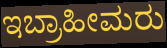
ಇಬ್ರಾಹೀಮರು